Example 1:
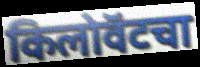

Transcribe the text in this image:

किलोवॅटचा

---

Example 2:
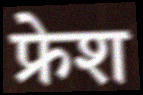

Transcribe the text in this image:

फ्रेश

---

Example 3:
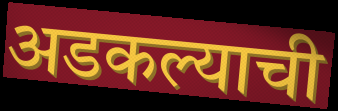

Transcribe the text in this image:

अडकल्याची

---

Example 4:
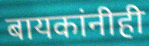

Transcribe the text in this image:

बायकांनीही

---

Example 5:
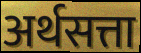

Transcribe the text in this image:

अर्थसत्ता